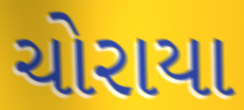
ચોરાયા